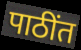
पाठींत